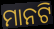
ମାନଟି